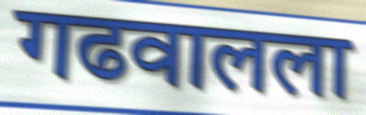
गढवालला